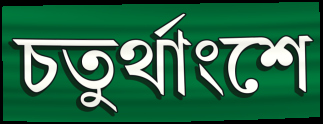
চতুর্থাংশে